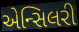
એન્સિલરી